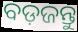
ବଡ଼ଜନ୍ତୁ